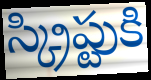
స్క్రిప్టుకి